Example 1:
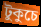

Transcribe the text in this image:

টুকুচে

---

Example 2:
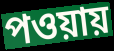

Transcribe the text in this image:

পওয়ায়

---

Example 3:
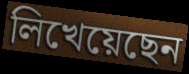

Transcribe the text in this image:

লিখেয়েছেন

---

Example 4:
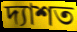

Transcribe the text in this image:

দ্যাশত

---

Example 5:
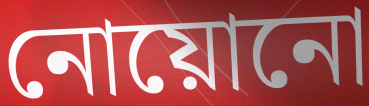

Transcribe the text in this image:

নোয়োনো